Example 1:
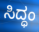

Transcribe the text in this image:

ಸಿದ್ಧಂ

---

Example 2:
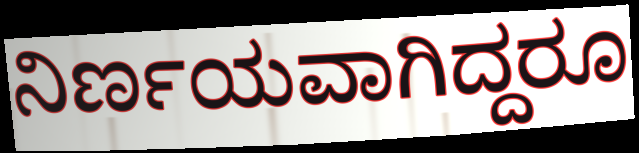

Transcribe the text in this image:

ನಿರ್ಣಯವಾಗಿದ್ದರೂ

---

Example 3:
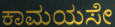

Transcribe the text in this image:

ಕಾಮಯಸೇ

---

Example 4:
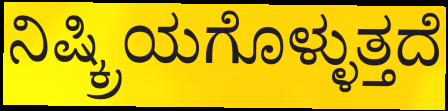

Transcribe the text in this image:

ನಿಷ್ಕ್ರಿಯಗೊಳ್ಳುತ್ತದೆ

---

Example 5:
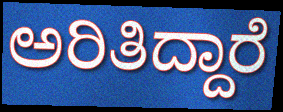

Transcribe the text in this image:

ಅರಿತಿದ್ದಾರೆ